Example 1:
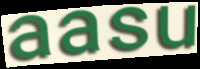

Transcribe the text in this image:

aasu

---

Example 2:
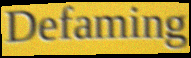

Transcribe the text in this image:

Defaming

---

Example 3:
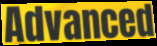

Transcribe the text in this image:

Advanced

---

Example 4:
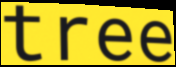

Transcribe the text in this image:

tree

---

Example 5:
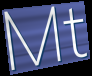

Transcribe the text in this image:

Mt